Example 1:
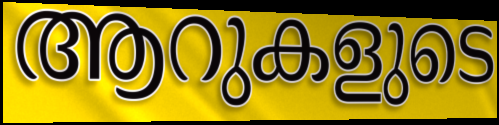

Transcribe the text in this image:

ആറുകളുടെ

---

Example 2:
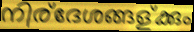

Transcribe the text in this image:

നിര്ദേശങ്ങള്ക്കും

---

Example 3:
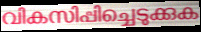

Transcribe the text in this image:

വികസിപ്പിച്ചെടുക്കുക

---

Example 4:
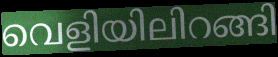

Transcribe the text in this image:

വെളിയിലിറങ്ങി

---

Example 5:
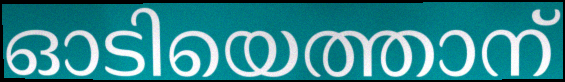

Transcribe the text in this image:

ഓടിയെത്താന്